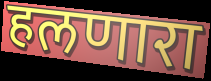
हलणारा